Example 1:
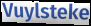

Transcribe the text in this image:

Vuylsteke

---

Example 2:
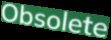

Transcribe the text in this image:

Obsolete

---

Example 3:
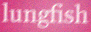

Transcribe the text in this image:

lungfish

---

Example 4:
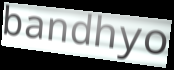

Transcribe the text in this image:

bandhyo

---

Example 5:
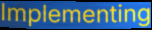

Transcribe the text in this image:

Implementing